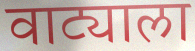
वाट्याला